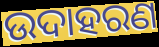
ଉଦାହରଣ